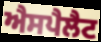
ਐਸਪੈਲੈਟ